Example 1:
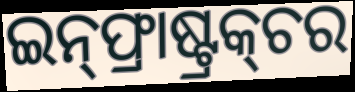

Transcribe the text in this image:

ଇନ୍‌ଫ୍ରାଷ୍ଟ୍ରକ୍‌ଚର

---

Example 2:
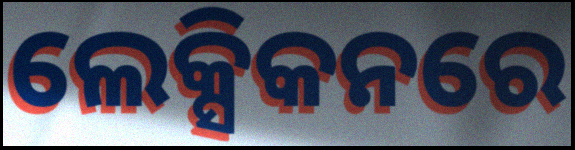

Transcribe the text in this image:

ଲେକ୍ସିକନରେ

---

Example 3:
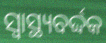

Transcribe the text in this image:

ସ୍ଵାସ୍ଥ୍ୟବର୍ଦ୍ଦକ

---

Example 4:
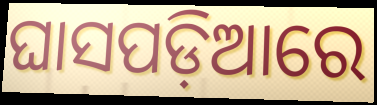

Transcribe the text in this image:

ଘାସପଡ଼ିଆରେ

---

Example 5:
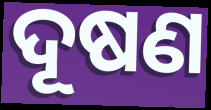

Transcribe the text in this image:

ଦୂଷଣ